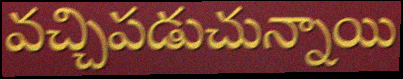
వచ్చిపడుచున్నాయి